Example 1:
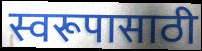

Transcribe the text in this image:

स्वरूपासाठी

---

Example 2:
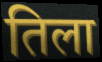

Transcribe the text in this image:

तिला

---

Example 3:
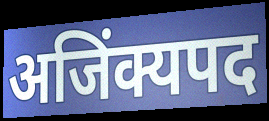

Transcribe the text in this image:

अजिंक्यपद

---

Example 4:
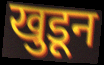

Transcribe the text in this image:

खुडून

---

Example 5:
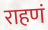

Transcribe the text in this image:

राहणं